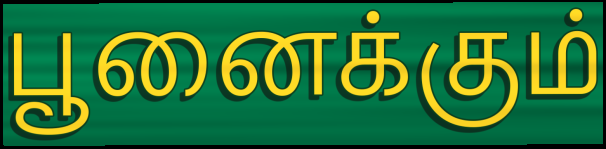
பூனைக்கும்